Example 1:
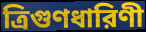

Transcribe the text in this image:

ত্রিগুণধারিণী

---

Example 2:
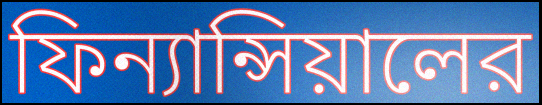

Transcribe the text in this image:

ফিন্যান্সিয়ালের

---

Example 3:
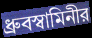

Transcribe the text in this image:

ধ্রুবস্বামিনীর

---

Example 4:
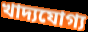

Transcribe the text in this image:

খাদ্যযোগ্য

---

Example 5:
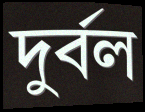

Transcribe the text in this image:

দুর্বল